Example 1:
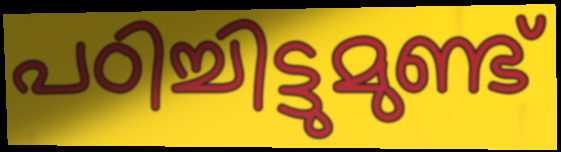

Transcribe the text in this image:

പഠിച്ചിട്ടുമുണ്ട്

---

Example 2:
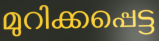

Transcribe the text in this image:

മുറിക്കപ്പെട്ട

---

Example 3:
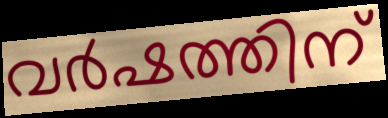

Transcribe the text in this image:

വർഷത്തിന്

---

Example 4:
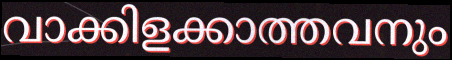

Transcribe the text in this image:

വാക്കിളക്കാത്തവനും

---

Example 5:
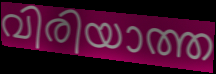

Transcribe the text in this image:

വിരിയാത്ത